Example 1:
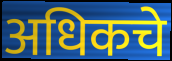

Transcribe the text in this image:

अधिकचे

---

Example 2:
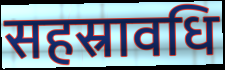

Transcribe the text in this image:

सहस्रावधि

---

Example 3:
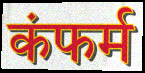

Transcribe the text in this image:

कंफर्म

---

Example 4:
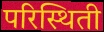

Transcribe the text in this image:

परिस्थिती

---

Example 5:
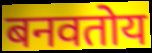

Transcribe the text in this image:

बनवतोय